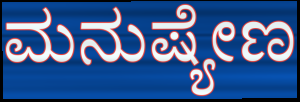
ಮನುಷ್ಯೇಣ